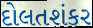
દોલતશંકર